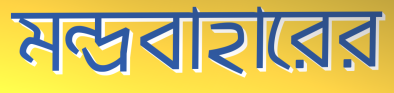
মন্দ্রবাহারের